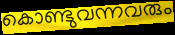
കൊണ്ടുവന്നവരും